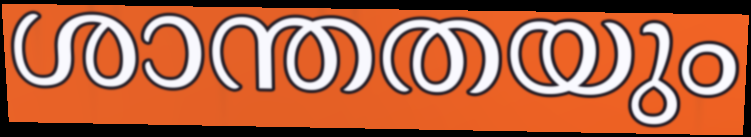
ശാന്തതയും